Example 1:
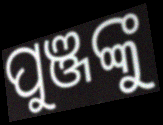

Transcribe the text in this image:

ପୁଞ୍ଜଙ୍କୁ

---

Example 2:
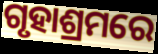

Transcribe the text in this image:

ଗୃହାଶ୍ରମରେ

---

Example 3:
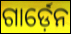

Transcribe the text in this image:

ଗାର୍ଡ଼େନ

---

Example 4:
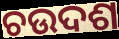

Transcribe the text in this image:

ଚଉଦଶ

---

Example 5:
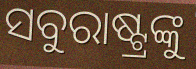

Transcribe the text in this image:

ସବୁରାଷ୍ଟ୍ରଙ୍କୁ